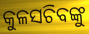
କୁଳସଚିବଙ୍କୁ